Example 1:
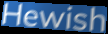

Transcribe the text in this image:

Hewish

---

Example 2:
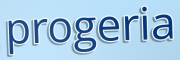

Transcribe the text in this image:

progeria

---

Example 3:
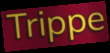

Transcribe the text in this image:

Trippe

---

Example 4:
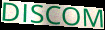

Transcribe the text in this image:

DISCOM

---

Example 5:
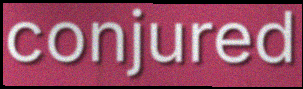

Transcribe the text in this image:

conjured